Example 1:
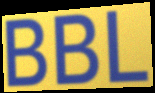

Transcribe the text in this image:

BBL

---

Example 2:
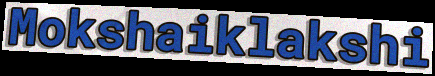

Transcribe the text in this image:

Mokshaiklakshi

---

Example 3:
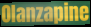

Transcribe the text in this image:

Olanzapine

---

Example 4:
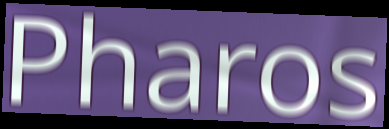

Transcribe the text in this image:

Pharos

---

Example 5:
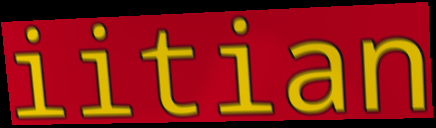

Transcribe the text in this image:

iitian